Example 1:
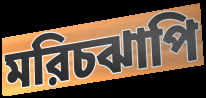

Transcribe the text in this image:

মরিচঝাপি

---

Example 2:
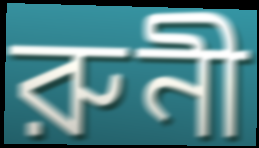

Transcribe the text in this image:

রুনী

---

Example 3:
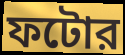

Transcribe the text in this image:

ফটোর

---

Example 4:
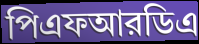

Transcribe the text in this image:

পিএফআরডিএ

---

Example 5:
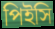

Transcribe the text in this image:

পিইসি